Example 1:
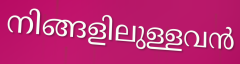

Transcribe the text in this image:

നിങ്ങളിലുള്ളവൻ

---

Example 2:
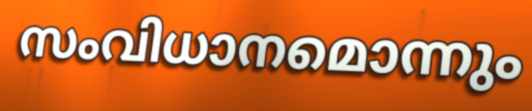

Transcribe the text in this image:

സംവിധാനമൊന്നും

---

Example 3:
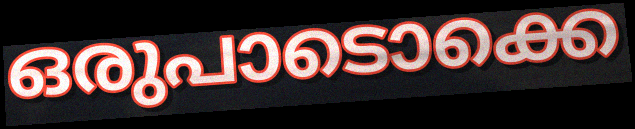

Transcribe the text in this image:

ഒരുപാടൊക്കെ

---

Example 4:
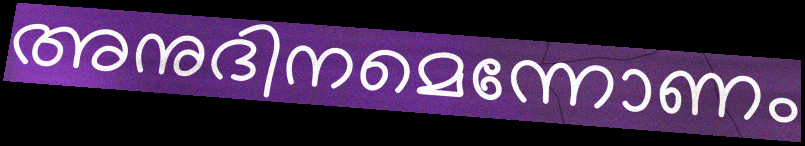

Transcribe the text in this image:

അനുദിനമെന്നോണം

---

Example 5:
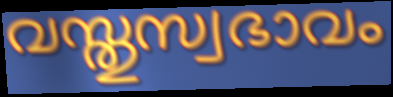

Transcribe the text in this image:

വസ്തുസ്വഭാവം